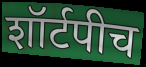
शॉर्टपीच